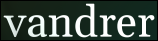
vandrer